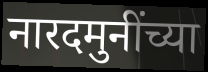
नारदमुनींच्या